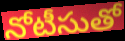
నోటీసుతో